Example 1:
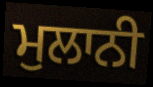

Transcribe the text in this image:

ਮੁਲਾਨੀ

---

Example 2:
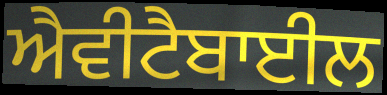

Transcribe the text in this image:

ਐਵੀਟੈਬਾਈਲ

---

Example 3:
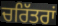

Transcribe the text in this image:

ਚਰਿੱਤਰਾਂ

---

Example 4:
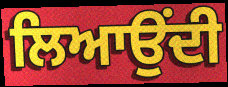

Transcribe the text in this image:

ਲਿਆਉਂਦੀ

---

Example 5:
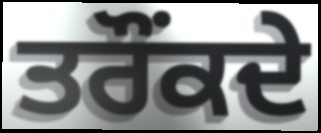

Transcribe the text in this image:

ਤਰੌਂਕਦੇ